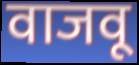
वाजवू